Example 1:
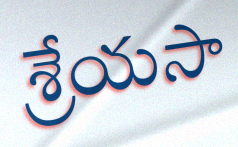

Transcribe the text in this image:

శ్రేయసా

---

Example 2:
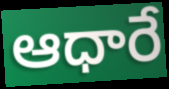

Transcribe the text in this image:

ఆధారే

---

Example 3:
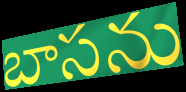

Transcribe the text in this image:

బాసను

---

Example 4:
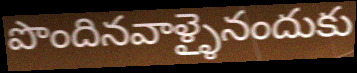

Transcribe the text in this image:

పొందినవాళ్ళైనందుకు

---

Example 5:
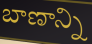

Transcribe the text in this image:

బాణాన్ని